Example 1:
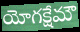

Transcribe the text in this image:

యోగక్షేమౌ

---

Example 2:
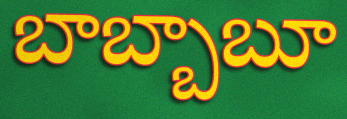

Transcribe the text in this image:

బాబ్బాబూ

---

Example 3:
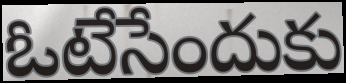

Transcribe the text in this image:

ఓటేసేందుకు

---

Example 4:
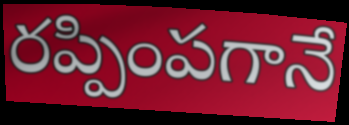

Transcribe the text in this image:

రప్పింపగానే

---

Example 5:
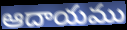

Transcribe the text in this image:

ఆదాయము